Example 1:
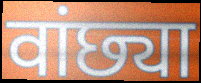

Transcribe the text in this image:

वांछ्या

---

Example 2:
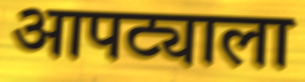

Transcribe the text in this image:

आपट्याला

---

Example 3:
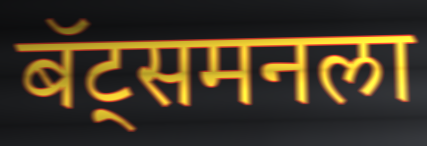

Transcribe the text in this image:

बॅट्समनला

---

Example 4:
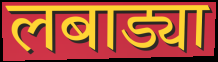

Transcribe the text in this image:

लबाड्या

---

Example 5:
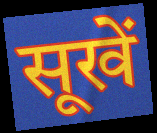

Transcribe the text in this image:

सूखें